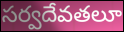
సర్వదేవతలూ